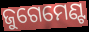
ଜୁଗେମେଣ୍ଟ